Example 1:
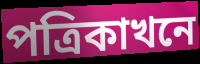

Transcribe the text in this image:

পত্ৰিকাখনে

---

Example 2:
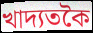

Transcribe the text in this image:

খাদ্যতকৈ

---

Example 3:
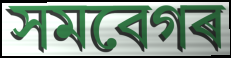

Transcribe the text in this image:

সমবেগৰ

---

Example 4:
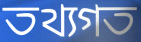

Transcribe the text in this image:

তথ্যগত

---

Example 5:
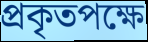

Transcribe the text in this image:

প্ৰকৃতপক্ষে